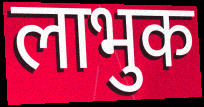
लाभुक